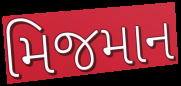
મિજમાન